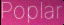
Poplar